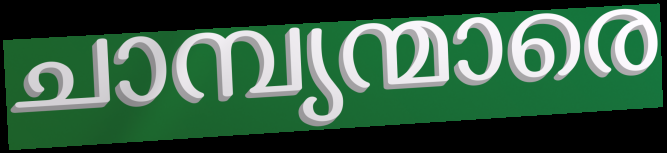
ചാമ്പ്യന്മാരെ